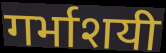
गर्भाशयी